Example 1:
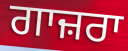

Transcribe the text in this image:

ਗਾਜ਼ਰਾ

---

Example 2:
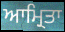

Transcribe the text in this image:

ਆਮ੍ਰਿਤਾ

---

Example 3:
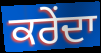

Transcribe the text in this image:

ਕਰੇਂਦਾ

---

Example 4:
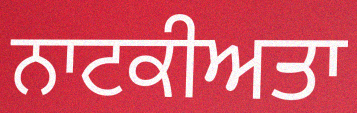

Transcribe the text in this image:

ਨਾਟਕੀਅਤਾ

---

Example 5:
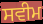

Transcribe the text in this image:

ਸਵੀਮ